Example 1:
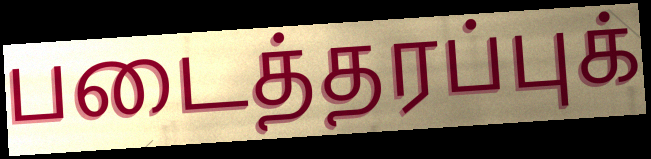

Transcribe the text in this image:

படைத்தரப்புக்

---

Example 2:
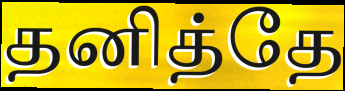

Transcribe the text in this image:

தனித்தே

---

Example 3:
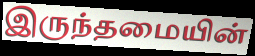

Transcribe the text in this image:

இருந்தமையின்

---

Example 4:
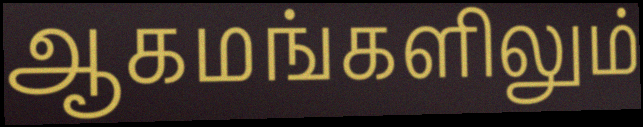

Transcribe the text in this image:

ஆகமங்களிலும்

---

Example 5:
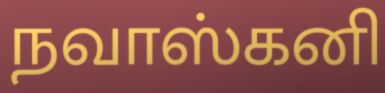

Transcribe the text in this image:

நவாஸ்கனி